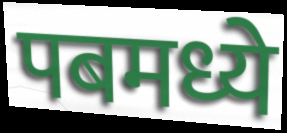
पबमध्ये